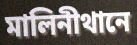
মালিনীথানে